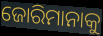
ଜୋରିମାନାକୁ